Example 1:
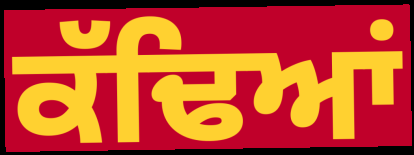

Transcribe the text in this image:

ਕੱਢਿਆਂ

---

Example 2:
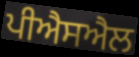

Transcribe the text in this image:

ਪੀਐਸਐਲ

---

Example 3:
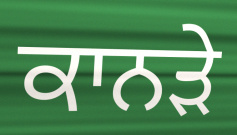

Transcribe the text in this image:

ਕਾਨੜੇ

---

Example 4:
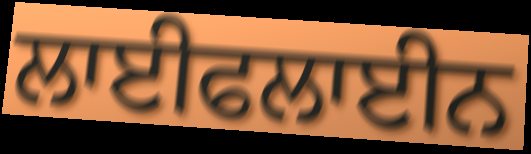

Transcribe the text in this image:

ਲਾਈਫਲਾਈਨ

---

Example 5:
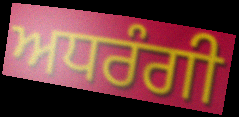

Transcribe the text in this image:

ਅਧਰੰਗੀ